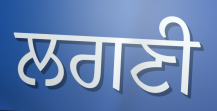
ਲਗਣੀ